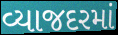
વ્યાજદરમાં